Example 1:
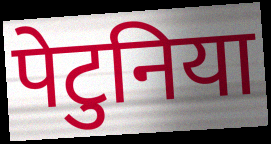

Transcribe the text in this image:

पेटुनिया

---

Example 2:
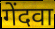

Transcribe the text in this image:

गेंदवा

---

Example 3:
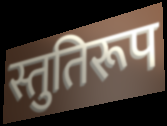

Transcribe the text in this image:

स्तुतिरूप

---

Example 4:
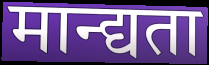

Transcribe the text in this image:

मान्द्यता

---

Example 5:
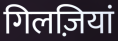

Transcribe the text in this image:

गिलज़ियां